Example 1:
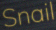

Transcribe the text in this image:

Snail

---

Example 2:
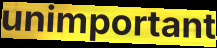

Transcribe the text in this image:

unimportant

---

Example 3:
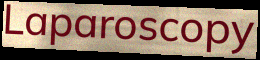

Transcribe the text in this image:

Laparoscopy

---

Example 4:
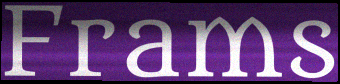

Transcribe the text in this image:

Frams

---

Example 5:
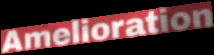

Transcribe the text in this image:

Amelioration